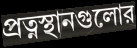
প্রত্নস্থানগুলোর